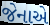
જેનાએ